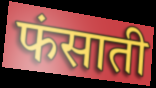
फंसाती